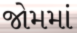
જોમમાં